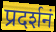
प्रदर्शनं